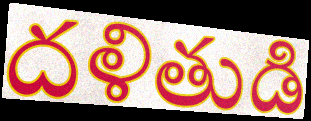
దళితుడి